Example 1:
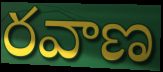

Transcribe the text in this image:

రవాణ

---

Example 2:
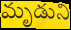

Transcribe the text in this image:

మృడుని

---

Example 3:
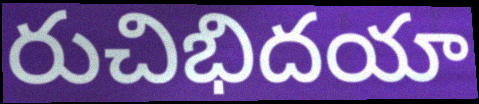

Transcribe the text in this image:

రుచిభిదయా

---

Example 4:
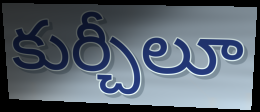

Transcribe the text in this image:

కుర్చీలూ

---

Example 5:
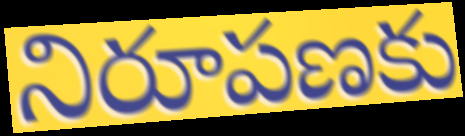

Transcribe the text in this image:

నిరూపణకు